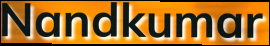
Nandkumar